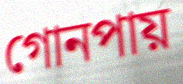
গোনপায়